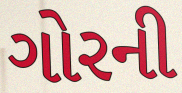
ગોરની